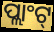
ପ୍ଲାଂଟ୍